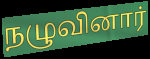
நழுவினார்